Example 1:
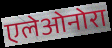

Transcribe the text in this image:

एलेओनोरा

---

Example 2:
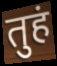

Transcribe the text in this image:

तुहं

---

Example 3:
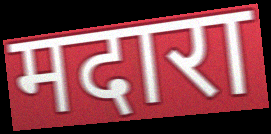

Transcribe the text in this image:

मदारा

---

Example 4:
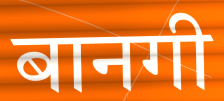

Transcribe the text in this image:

बानगी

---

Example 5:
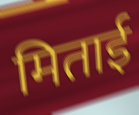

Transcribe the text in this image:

मिताई